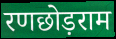
रणछोड़राम